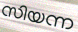
സിയന്ന